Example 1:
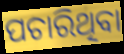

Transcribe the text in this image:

ପଚାରିଥିବା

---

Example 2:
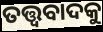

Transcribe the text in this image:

ତତ୍ତ୍ୱବାଦକୁ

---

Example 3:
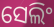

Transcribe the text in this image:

ସେଲିଂ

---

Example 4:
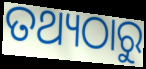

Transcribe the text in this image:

ତଥ୍ୟଠାରୁ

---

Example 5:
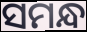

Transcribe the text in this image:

ସମନ୍ଧ